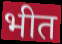
भीत